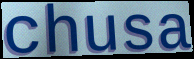
chusa